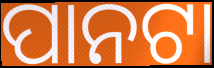
ପାନଟା